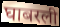
घाबरली